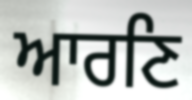
ਆਰਣਿ